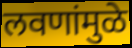
लवणांमुळे